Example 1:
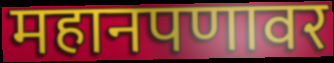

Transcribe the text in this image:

महानपणावर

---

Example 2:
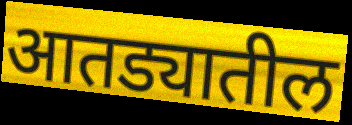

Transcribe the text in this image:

आतड्यातील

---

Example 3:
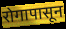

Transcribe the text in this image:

रोगापासून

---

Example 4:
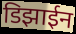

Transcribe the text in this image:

डिझाईन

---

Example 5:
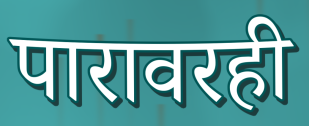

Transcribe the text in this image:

पारावरही